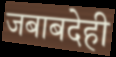
जबाबदेही